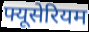
फ्यूसेरियम